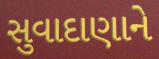
સુવાદાણાને